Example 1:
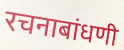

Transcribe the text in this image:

रचनाबांधणी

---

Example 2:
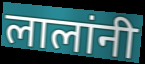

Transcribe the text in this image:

लालांनी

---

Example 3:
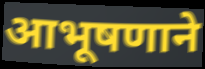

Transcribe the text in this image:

आभूषणाने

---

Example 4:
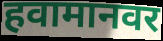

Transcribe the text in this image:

हवामानवर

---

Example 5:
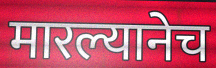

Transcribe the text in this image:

मारल्यानेच